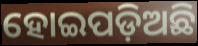
ହୋଇପଡ଼ିଅଛି